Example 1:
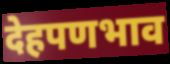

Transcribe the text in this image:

देहपणभाव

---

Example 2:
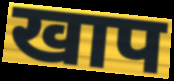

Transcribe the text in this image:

खाप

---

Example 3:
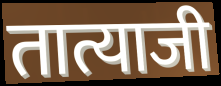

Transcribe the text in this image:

तात्याजी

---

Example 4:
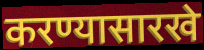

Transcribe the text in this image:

करण्यासारखे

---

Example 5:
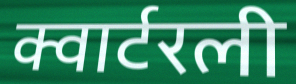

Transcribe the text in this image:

क्वार्टरली